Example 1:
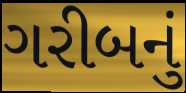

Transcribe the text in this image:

ગરીબનું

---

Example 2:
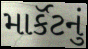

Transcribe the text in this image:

માર્કૅટનું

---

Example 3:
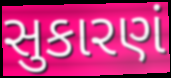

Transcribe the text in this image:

સુકારણં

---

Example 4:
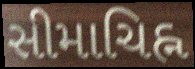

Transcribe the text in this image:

સીમાચિહ્ન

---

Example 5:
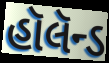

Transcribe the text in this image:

હૉલૅન્ડ